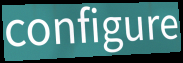
configure